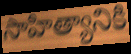
సాహిత్యానికి